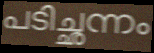
പടിച്ഛന്നം